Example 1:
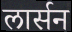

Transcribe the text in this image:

लार्सन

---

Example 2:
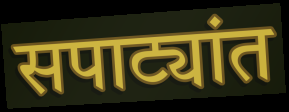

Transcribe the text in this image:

सपाट्यांत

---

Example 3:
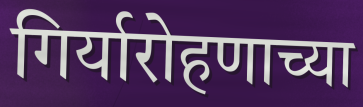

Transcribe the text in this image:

गिर्यारोहणाच्या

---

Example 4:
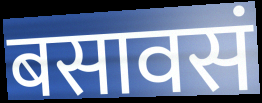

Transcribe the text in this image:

बसावसं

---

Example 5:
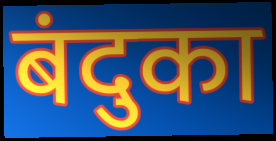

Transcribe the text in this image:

बंदुका